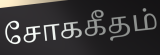
சோககீதம்